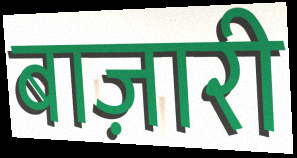
बाज़ारी